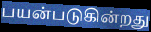
பயன்படுகின்றது